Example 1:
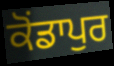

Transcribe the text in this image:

ਕੋਂਡਾਪੁਰ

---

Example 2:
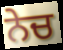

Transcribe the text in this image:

ਨੇਚ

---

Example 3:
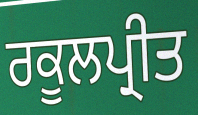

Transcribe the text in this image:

ਰਕੂਲਪ੍ਰੀਤ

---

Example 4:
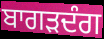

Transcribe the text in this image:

ਬਾਗੜਦੰਗ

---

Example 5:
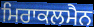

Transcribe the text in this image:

ਮਿਰਾਕਲਮੈਨ